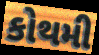
કોથમી